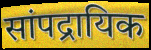
सांपद्रायिक